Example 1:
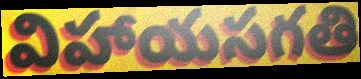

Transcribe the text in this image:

విహాయసగతి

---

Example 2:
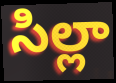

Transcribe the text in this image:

సిల్లా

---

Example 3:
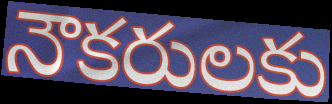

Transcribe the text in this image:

నౌకరులకు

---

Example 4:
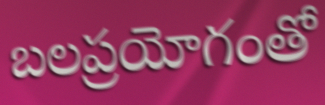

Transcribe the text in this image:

బలప్రయోగంతో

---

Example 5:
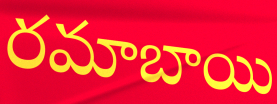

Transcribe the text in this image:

రమాబాయి